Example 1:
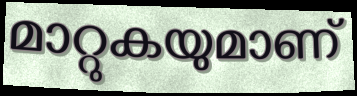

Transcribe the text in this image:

മാറ്റുകയുമാണ്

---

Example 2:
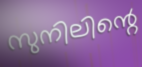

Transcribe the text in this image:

സുനിലിന്റെ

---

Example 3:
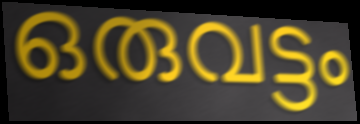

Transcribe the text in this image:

ഒരുവട്ടം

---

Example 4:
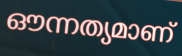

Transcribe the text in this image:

ഔന്നത്യമാണ്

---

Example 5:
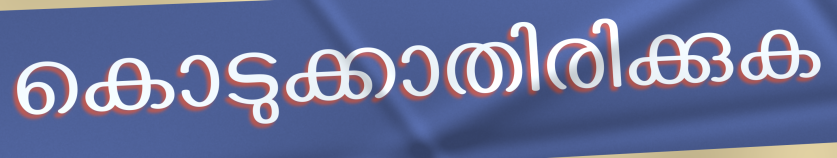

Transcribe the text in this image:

കൊടുക്കാതിരിക്കുക